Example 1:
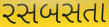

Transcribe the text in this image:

રસબસતા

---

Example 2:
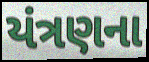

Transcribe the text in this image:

યંત્રણના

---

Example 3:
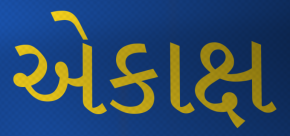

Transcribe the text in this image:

એકાક્ષ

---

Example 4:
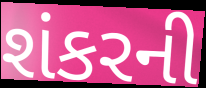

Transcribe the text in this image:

શંકરની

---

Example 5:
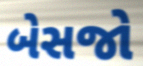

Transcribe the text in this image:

બેસજો